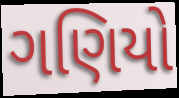
ગણિયો